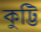
কুট্টি